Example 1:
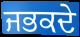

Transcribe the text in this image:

ਜਭਕਦੇ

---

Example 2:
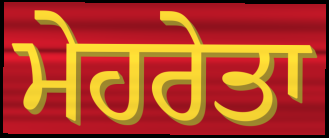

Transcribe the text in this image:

ਮੇਹਰੇਤਾ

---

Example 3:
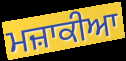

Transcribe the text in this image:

ਮਜ਼ਾਕੀਆ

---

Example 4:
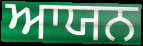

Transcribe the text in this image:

ਆਯਨ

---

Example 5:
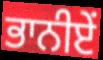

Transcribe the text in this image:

ਭਾਨੀਏਂ